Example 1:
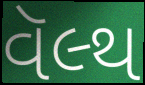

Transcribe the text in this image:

વૅલ્થ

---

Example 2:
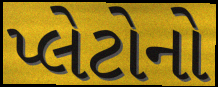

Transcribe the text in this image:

પ્લેટોનો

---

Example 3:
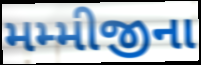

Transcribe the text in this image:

મમ્મીજીના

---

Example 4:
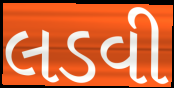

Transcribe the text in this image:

લડવી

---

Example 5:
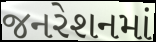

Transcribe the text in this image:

જનરેશનમાં